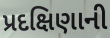
પ્રદક્ષિણાની